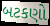
બટકણો